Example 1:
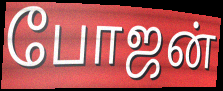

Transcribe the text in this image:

போஜன்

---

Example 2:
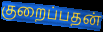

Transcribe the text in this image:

குறைப்பதன்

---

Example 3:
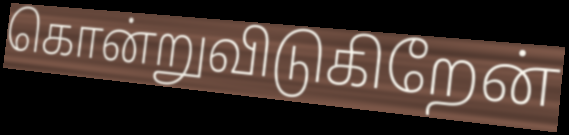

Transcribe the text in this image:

கொன்றுவிடுகிறேன்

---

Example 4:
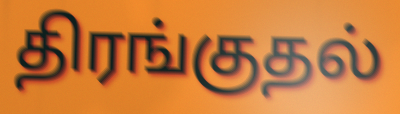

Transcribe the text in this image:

திரங்குதல்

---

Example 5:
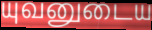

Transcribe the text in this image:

யுவனுடைய